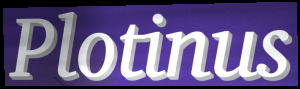
Plotinus